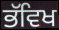
ਭੱਵਿਖ